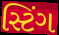
સ્ટિંગ